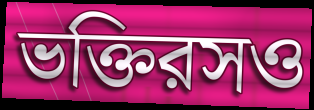
ভক্তিরসও